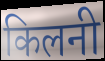
किलनी